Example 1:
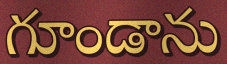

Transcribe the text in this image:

గూండాను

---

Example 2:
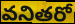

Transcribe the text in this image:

వనితరో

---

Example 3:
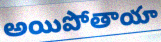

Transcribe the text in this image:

అయిపోతాయా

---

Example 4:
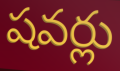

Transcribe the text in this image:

షవర్లు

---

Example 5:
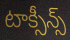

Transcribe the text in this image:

టాక్సీన్స్